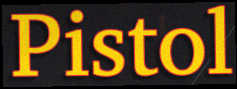
Pistol